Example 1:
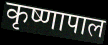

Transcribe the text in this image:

कृष्णापाल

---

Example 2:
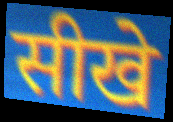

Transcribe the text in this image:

सीखे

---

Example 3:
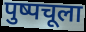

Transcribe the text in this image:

पुष्पचूला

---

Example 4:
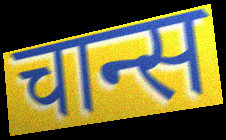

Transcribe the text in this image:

चान्स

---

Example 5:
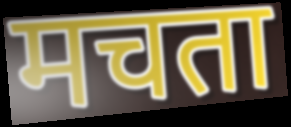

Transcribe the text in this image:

मचता